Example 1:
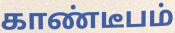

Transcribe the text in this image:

காண்டீபம்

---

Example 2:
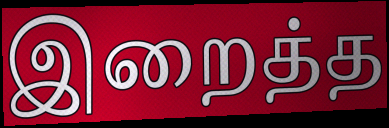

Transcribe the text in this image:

இறைத்த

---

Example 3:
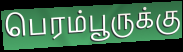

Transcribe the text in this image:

பெரம்பூருக்கு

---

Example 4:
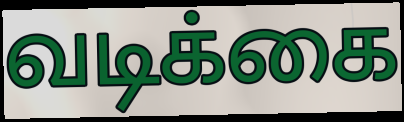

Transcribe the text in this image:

வடிக்கை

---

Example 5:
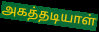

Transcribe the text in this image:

அகத்தடியாள்